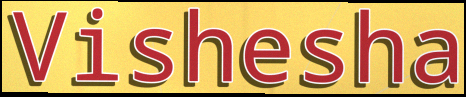
Vishesha